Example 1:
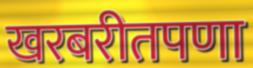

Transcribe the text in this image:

खरबरीतपणा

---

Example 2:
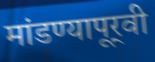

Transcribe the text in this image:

मांडण्यापूर्वी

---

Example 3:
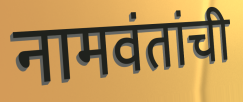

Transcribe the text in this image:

नामवंतांची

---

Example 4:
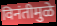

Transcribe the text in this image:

विनंतीमुळे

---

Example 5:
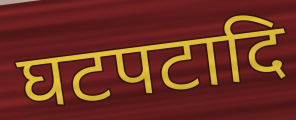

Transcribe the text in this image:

घटपटादि